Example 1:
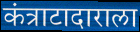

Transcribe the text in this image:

कंत्राटादाराला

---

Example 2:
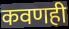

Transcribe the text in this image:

कवणही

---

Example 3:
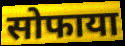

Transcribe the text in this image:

सोफाया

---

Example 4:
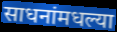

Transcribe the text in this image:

साधनांमधल्या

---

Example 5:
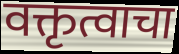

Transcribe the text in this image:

वक्तृत्वाचा